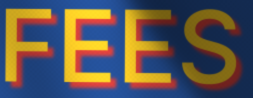
FEES